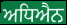
ਅਧਿਐਨ